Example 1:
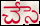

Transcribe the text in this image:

చేసె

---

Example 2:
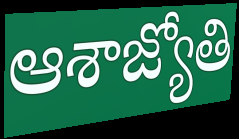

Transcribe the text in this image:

ఆశాజ్యోతి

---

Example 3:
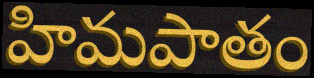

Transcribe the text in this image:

హిమపాతం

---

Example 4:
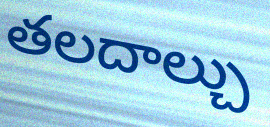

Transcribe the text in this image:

తలదాల్చు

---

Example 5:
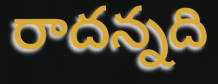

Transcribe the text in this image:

రాదన్నది